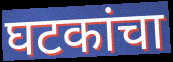
घटकांचा